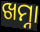
ଖମ୍ନା